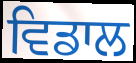
ਵਿਡਾਲ